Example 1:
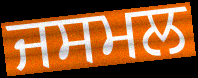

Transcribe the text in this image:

ਜਸਮਲ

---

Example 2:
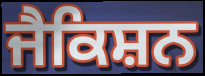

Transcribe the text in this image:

ਜੈਕਿਸ਼ਨ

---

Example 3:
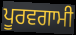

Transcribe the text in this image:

ਪੂਰਵਗਾਮੀ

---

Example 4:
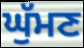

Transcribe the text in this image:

ਘੁੱਮਣ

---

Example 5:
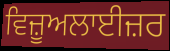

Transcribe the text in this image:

ਵਿਜ਼ੂਅਲਾਈਜ਼ਰ